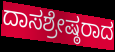
ದಾಸಶ್ರೇಷ್ಠರಾದ